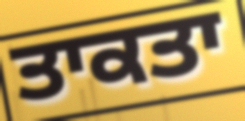
ਤਾਕਤਾ